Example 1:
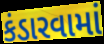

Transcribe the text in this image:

કંડારવામાં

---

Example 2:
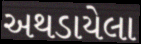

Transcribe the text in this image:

અથડાયેલા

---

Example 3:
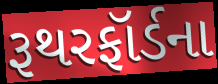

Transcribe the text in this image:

રૂથરફૉર્ડના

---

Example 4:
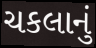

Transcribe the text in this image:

ચકલાનું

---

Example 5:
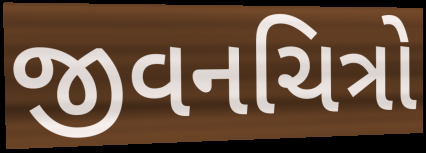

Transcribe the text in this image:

જીવનચિત્રો